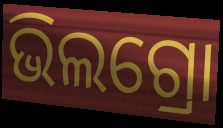
ଭିଲଗ୍ରୋ